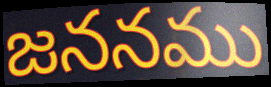
జననము